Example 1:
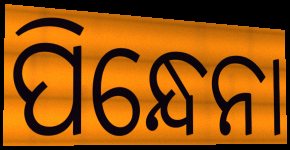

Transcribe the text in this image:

ପିନ୍ଧେନା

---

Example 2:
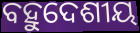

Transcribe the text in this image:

ବହୁଦେଶୀୟ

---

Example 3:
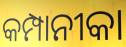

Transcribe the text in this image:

କମ୍ପାନୀକା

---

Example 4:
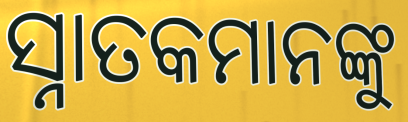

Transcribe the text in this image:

ସ୍ନାତକମାନଙ୍କୁ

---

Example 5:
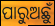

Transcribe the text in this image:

ପାରୁଅଛୁଁ